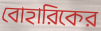
বোহারিকের